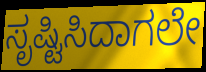
ಸೃಷ್ಟಿಸಿದಾಗಲೇ